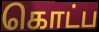
கொட்ப